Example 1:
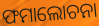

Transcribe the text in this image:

ଫମାଲୋଚନା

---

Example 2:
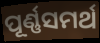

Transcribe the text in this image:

ପୂର୍ଣ୍ଣସମର୍ଥ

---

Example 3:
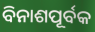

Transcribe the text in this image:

ବିନାଶପୂର୍ବକ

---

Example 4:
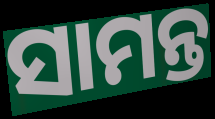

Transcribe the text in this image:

ସାମନ୍ତ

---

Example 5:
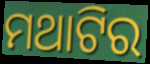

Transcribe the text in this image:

ମଥାଟିର